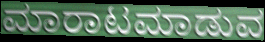
ಮಾರಾಟಮಾಡುವ